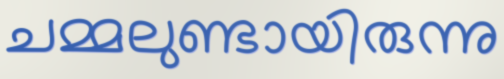
ചമ്മലുണ്ടായിരുന്നു